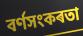
বৰ্ণসংকৰতা